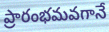
ప్రారంభమవగానే